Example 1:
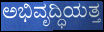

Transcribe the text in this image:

ಅಭಿವೃದ್ಧಿಯತ್ತ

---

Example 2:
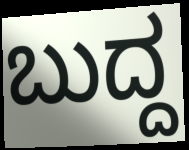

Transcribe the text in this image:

ಬುದ್ದ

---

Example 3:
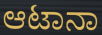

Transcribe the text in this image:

ಆಟಾನಾ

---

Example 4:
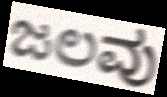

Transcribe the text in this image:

ಜಲವು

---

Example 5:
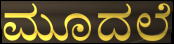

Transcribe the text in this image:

ಮೂದಲೆ